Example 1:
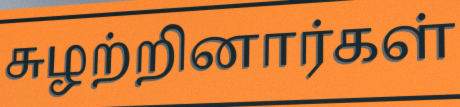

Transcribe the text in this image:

சுழற்றினார்கள்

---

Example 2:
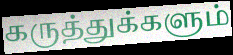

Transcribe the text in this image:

கருத்துக்களும்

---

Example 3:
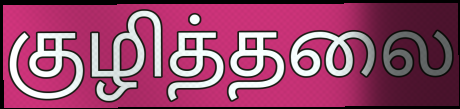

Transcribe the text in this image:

குழித்தலை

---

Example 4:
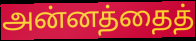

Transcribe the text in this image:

அன்னத்தைத்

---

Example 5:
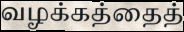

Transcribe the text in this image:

வழக்கத்தைத்